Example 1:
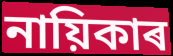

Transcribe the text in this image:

নায়িকাৰ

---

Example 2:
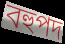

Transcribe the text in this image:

বহুপদ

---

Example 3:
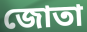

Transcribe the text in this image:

জোতা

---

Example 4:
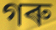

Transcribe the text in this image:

গৰু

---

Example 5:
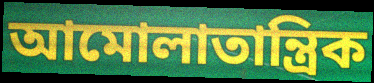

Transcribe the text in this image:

আমোলাতান্ত্ৰিক